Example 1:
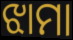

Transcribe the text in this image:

ଝାମା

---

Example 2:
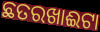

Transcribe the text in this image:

ଛତରଖାଈଟା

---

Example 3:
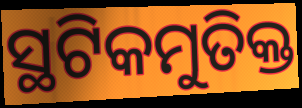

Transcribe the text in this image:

ସ୍ଥଟିକମୁତିକ୍ତ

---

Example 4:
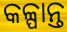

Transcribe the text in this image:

କଳ୍ପାନ୍ତ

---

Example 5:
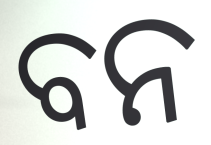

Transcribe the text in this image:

ବନ